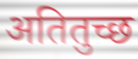
अतितुच्छ